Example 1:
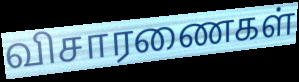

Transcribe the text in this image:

விசாரணைகள்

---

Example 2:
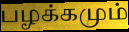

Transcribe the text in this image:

பழக்கமும்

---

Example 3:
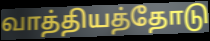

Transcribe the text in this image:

வாத்தியத்தோடு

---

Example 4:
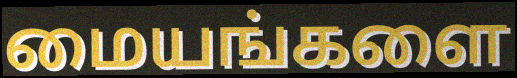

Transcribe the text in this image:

மையங்களை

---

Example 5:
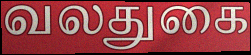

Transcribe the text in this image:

வலதுகை